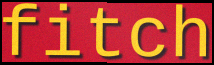
fitch